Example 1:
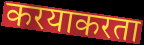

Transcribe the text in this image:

करयाकरता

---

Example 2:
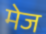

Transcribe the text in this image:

मेज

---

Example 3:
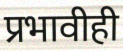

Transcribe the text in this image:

प्रभावीही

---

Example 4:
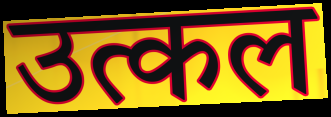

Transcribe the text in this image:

उत्कल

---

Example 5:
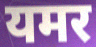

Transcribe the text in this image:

यमर